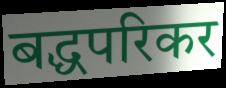
बद्धपरिकर